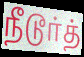
நீடூர்த்